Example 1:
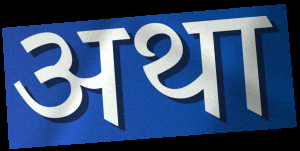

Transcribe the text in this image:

अथा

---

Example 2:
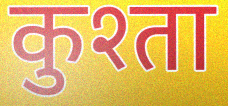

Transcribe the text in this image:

कुश्ता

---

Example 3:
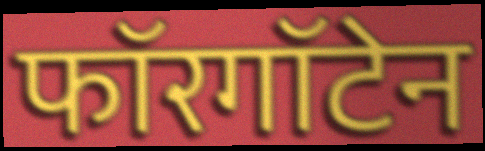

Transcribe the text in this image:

फॉरगॉटेन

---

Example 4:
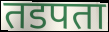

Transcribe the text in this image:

तडपता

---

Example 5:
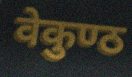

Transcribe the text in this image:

वेकुण्ठ